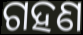
ଗହଣ